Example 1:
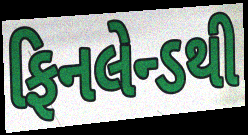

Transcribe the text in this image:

ફિનલેન્ડથી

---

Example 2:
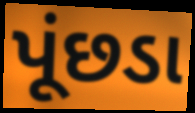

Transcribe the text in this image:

પૂંછડા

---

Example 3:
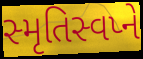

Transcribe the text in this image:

સ્મૃતિસ્વપ્ને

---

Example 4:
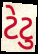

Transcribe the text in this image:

ટેટુ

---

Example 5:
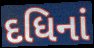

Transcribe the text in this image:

દધિનાં